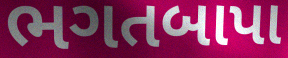
ભગતબાપા